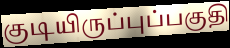
குடியிருப்புப்பகுதி